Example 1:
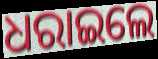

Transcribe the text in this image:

ଧରାଇଲେ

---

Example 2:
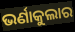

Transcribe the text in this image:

ଭର୍ଣାକୁଲାର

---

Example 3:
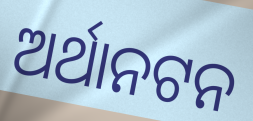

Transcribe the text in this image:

ଅର୍ଥାନଟନ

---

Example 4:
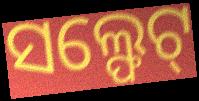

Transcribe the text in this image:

ସଲ୍ଫେଟ୍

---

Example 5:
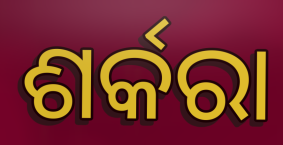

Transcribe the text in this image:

ଶର୍କରା